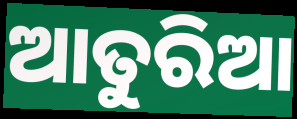
ଆତୁରିଆ